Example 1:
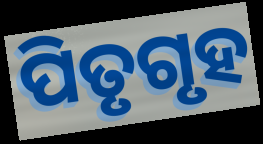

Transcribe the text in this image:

ପିତୃଗୃହ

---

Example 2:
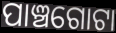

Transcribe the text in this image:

ପାଞ୍ଚଗୋଟା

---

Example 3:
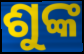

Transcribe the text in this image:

ଶୁଙ୍କ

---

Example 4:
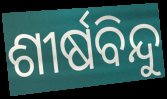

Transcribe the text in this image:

ଶୀର୍ଷବିନ୍ଦୁ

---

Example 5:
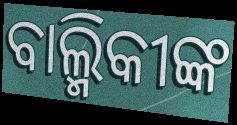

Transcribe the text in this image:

ବାଲ୍ମିକୀଙ୍କ